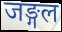
जङ्गल